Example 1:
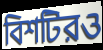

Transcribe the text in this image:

বিশটিরও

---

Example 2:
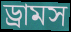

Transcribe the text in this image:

ড্রামস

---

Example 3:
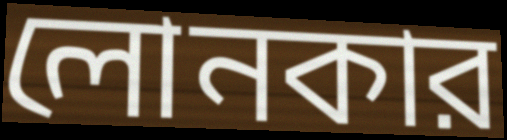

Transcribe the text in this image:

লোনকার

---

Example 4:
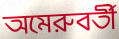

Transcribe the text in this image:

অমেরুবর্তী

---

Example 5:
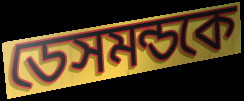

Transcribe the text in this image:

ডেসমন্ডকে